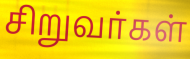
சிறுவர்கள்